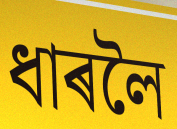
ধাৰলৈ